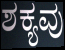
ಶಕ್ಯವು